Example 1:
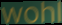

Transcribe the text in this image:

wohl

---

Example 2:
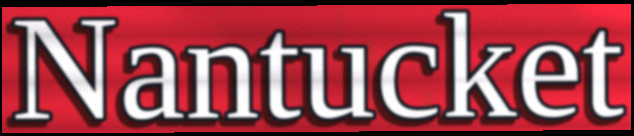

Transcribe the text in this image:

Nantucket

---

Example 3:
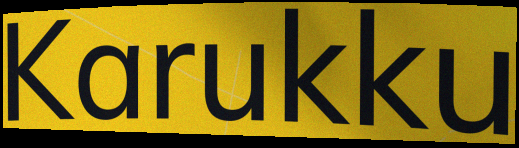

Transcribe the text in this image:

Karukku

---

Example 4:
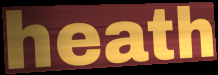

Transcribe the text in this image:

heath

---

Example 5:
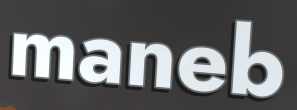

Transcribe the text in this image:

maneb